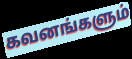
கவனங்களும்